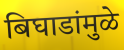
बिघाडांमुळे